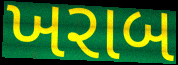
ખરાબ